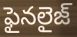
ఫైనలైజ్